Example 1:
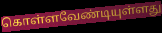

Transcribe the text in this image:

கொள்ளவேண்டியுள்ளது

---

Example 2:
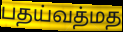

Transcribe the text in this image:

பதய்வத்மத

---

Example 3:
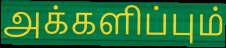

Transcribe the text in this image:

அக்களிப்பும்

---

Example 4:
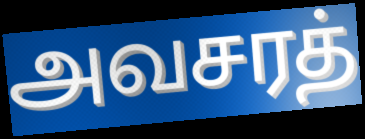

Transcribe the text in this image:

அவசரத்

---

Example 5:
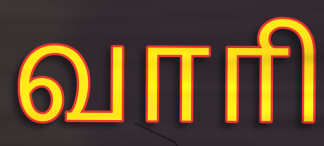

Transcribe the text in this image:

வாரி